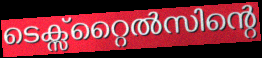
ടെക്സ്റ്റൈൽസിന്റെ